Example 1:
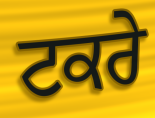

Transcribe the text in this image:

ਟਕਰੇ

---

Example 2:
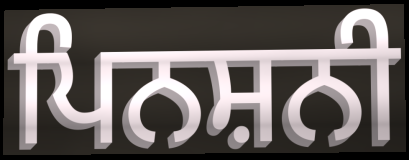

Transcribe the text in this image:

ਪਿਨਸ਼ਨੀ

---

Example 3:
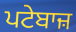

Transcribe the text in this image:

ਪਟੇਬਾਜ਼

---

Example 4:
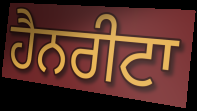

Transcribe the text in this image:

ਹੈਨਰੀਟਾ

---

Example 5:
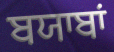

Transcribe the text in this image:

ਬਯਾਬਾਂ